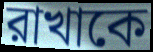
রাখাকে